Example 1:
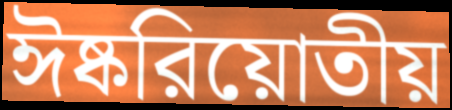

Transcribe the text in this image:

ঈষ্করিয়োতীয়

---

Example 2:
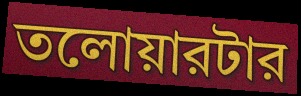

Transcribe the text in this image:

তলোয়ারটার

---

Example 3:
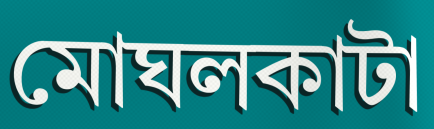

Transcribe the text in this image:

মোঘলকাটা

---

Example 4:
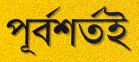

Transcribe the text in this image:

পূর্বশর্তই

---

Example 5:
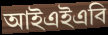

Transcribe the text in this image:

আইএইএবি